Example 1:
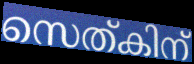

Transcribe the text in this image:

സെത്കിന്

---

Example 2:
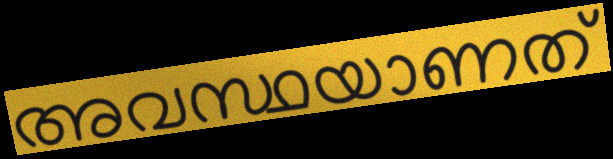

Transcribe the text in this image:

അവസ്ഥയാണത്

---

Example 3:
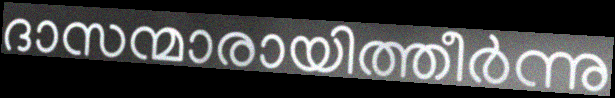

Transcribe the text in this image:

ദാസന്മാരായിത്തീർന്നു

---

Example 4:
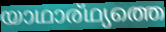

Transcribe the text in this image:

യാഥാര്ഥ്യത്തെ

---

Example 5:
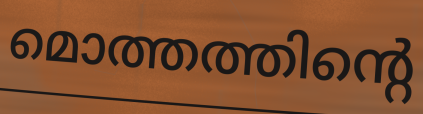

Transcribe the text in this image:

മൊത്തത്തിന്റെ